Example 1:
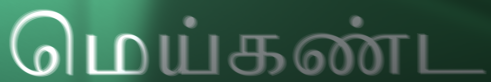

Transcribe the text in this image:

மெய்கண்ட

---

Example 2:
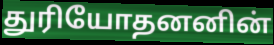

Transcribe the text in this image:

துரியோதனனின்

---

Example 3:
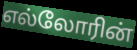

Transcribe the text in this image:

எல்லோரின்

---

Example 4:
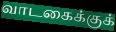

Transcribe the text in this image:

வாடகைக்குக்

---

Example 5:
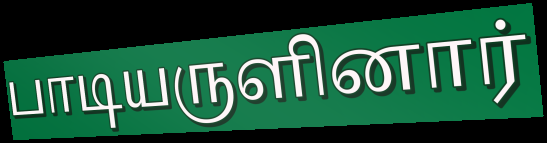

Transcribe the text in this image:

பாடியருளினார்